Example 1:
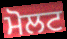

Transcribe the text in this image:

ਮੋਲਟ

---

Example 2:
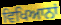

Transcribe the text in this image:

ਵਿਖਿਆਨਾਂ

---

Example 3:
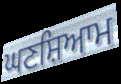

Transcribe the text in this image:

ਘਣਸ਼ਿਆਮ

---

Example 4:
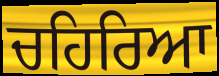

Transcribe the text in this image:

ਚਹਿਰਿਆ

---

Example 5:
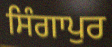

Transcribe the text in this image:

ਸਿੰਗਾਪੁਰ